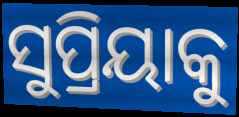
ସୁପ୍ରିୟାକୁ